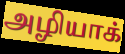
அழியாக்